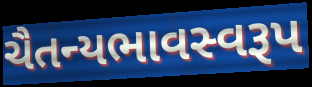
ચૈતન્યભાવસ્વરૂપ